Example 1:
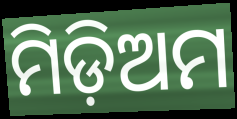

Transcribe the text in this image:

ମିଡ଼ିଅମ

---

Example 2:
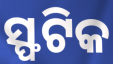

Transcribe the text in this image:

ସ୍ଫଟିକ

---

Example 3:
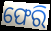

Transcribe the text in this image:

ଫେରି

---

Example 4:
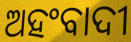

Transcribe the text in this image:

ଅହଂବାଦୀ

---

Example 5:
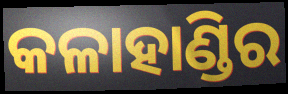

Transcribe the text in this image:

କଳାହାଣ୍ଡିର